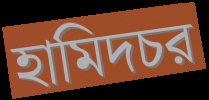
হামিদচর